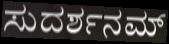
ಸುದರ್ಶನಮ್